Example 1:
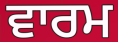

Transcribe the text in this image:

ਵਾਰਮ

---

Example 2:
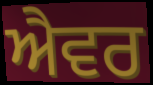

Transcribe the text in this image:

ਐਵਰ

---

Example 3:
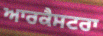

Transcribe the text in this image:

ਆਰਕੈਸਟਰਾ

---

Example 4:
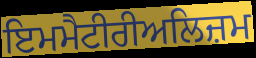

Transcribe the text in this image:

ਇਮਮੈਟੀਰੀਅਲਿਜ਼ਮ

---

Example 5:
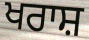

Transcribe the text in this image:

ਖਰਾਸ਼